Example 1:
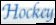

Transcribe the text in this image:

Hockey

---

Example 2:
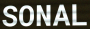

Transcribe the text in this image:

SONAL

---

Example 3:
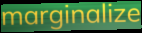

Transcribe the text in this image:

marginalize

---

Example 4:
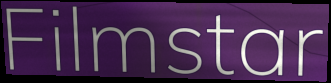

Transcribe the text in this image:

Filmstar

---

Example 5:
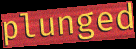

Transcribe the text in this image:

plunged